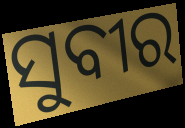
ସୁବୀର